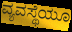
ವ್ಯವಸ್ಥೆಯೂ